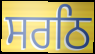
ਸਰਠਿ